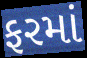
ફરમાં